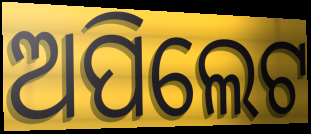
ଅପିଲେଟ